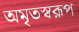
অমৃতস্বরূপ